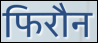
फिरौन